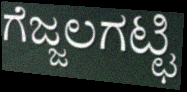
ಗೆಜ್ಜಲಗಟ್ಟಿ